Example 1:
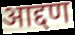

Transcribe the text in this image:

आद्दण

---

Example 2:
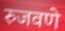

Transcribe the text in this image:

रुजवणे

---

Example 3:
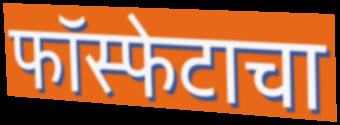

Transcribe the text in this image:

फॉस्फेटाचा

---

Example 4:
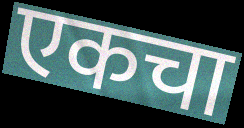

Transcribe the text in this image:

एकचा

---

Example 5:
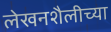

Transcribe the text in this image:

लेखनशैलीच्या